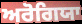
ਅਰੋਗਿਯਾ